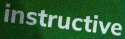
instructive